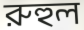
রুহুল